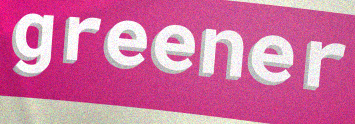
greener